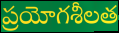
ప్రయోగశీలత